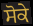
ਸੋਕੇ